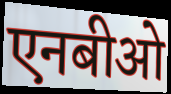
एनबीओ